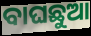
ବାଘଛୁଆ